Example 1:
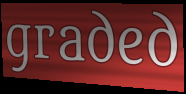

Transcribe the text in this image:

graded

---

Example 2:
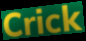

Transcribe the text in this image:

Crick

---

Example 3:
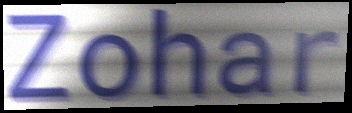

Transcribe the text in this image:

Zohar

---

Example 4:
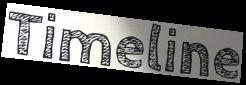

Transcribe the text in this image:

Timeline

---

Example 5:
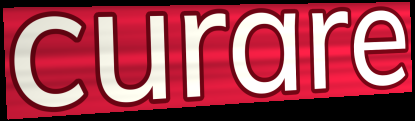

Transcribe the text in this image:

curare